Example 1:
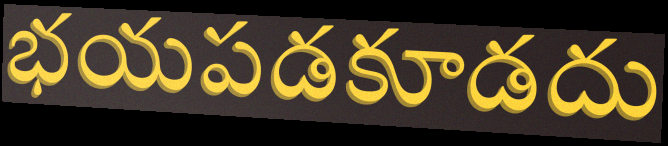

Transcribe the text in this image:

భయపడకూడదు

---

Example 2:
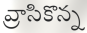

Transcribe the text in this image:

వ్రాసికొన్న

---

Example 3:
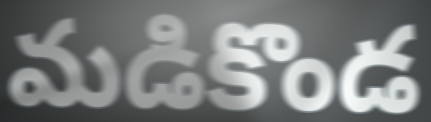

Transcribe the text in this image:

మడికొండ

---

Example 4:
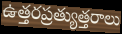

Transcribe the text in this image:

ఉత్తరప్రత్యుత్తరాలు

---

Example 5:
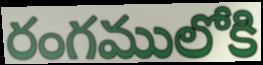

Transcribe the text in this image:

రంగములోకి